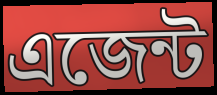
এজেন্ট